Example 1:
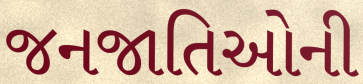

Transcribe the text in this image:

જનજાતિઓની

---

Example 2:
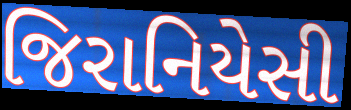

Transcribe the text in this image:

જિરાનિયેસી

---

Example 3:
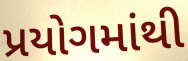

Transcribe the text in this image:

પ્રયોગમાંથી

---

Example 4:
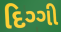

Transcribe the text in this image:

દિગ્ગી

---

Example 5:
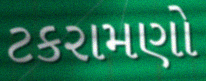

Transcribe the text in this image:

ટકરામણો